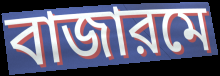
বাজারমে